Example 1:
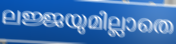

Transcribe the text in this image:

ലജ്ജയുമില്ലാതെ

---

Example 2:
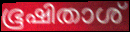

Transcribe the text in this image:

ഭൂഷിതാശ്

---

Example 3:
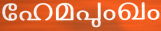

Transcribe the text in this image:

ഹേമപുംഖം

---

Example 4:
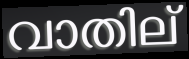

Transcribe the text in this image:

വാതില്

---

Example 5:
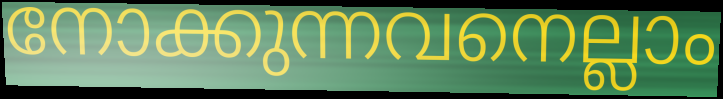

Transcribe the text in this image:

നോക്കുന്നവനെല്ലാം